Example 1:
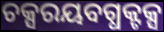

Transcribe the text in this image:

ଚକ୍ସରୟବଗ୍ଧକ୍ଟକ୍ସ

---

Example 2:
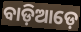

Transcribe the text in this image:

ବାଡ଼ିଆଡ଼େ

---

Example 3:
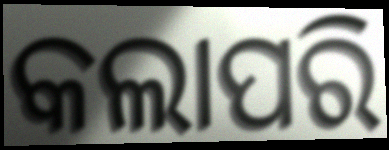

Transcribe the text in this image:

କଲାପରି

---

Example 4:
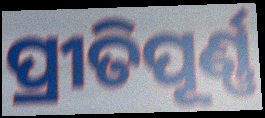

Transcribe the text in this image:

ପ୍ରୀତିପୂର୍ଣ୍ଣ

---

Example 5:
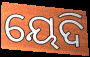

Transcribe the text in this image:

ୟେଦି